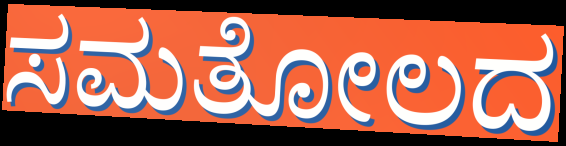
ಸಮತೋಲದ